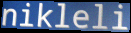
nikleli